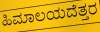
ಹಿಮಾಲಯದೆತ್ತರ